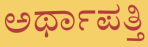
ಅರ್ಥಾಪತ್ತಿ